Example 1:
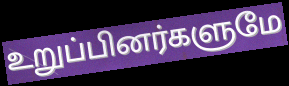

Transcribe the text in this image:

உறுப்பினர்களுமே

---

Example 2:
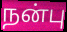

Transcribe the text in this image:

நன்பு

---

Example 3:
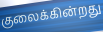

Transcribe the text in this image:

குலைக்கின்றது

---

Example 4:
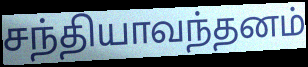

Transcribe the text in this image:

சந்தியாவந்தனம்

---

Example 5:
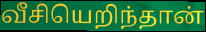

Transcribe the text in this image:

வீசியெறிந்தான்